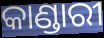
କାଣ୍ଡାରୀ